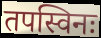
तपस्विनः